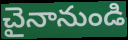
చైనానుండి